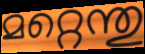
മറ്റെന്തു